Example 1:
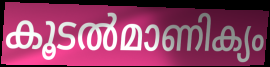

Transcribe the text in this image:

കൂടൽമാണിക്യം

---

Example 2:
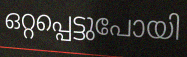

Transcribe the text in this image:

ഒറ്റപ്പെട്ടുപോയി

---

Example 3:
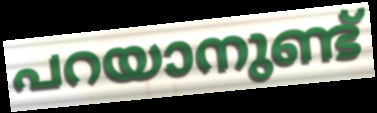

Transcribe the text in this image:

പറയാനുണ്ട്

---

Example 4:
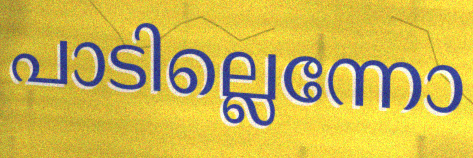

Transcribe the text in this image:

പാടില്ലെന്നോ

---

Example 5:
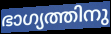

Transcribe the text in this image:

ഭാഗ്യത്തിനു